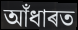
আঁধাৰত